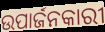
ଉପାର୍ଜନକାରୀ